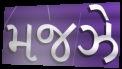
મજઝે